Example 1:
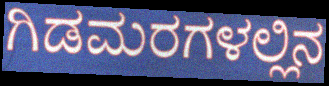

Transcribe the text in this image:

ಗಿಡಮರಗಳಲ್ಲಿನ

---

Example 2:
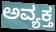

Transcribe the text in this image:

ಅವ್ಯಕ್ತ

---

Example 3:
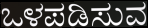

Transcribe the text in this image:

ಒಳಪಡಿಸುವ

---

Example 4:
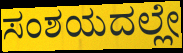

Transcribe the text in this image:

ಸಂಶಯದಲ್ಲೇ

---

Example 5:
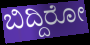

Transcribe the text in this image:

ಬಿದ್ದಿರೋ